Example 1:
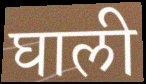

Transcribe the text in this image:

घाली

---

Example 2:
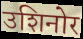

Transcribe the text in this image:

उशिनोर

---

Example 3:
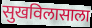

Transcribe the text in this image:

सुखविलासाला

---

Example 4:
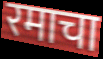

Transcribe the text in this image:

रमाचा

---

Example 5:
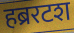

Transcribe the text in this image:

हब्ररटश